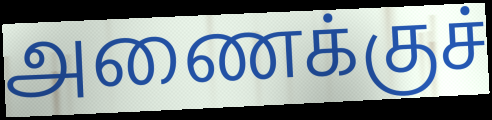
அணைக்குச்